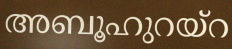
അബൂഹുറയ്റ